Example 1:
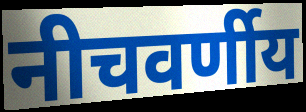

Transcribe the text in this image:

नीचवर्णीय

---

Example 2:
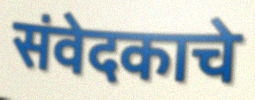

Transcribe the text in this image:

संवेदकाचे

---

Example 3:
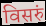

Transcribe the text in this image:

विसरुं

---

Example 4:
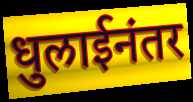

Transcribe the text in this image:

धुलाईनंतर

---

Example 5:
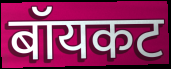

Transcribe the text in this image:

बॉयकट